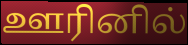
ஊரினில்